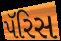
પૅરિસ